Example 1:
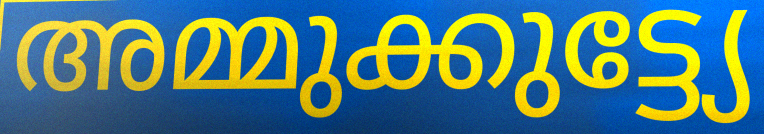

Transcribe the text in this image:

അമ്മുക്കുട്ട്യേ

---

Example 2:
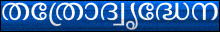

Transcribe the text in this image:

തത്രോദ്വൃദ്ധേന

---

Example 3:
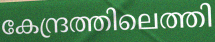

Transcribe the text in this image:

കേന്ദ്രത്തിലെത്തി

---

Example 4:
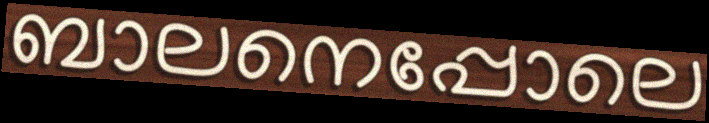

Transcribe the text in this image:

ബാലനെപ്പോലെ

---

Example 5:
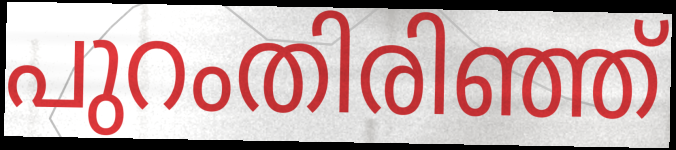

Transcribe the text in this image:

പുറംതിരിഞ്ഞ്